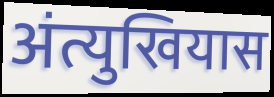
अंत्युखियास